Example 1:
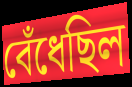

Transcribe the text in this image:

বেঁধেছিল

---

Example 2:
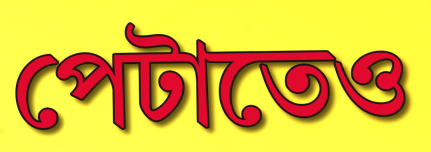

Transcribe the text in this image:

পেটাতেও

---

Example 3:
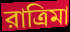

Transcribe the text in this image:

রাত্রিমা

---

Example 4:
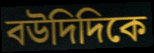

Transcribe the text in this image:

বউদিদিকে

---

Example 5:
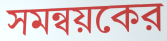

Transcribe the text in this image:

সমন্বয়কের